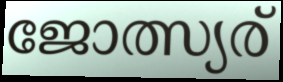
ജോത്സ്യര്